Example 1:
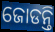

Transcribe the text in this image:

ଜୋଡନ୍ତି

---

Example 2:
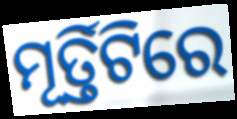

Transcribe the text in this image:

ମୂର୍ତ୍ତିଟିରେ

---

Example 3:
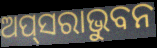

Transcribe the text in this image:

ଅପ୍‍ସରାଭୁବନ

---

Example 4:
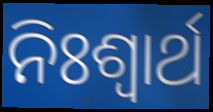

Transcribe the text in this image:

ନିଃଶ୍ୱାର୍ଥ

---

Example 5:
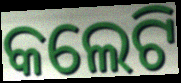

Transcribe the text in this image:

କଲେଟି